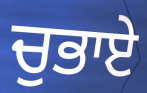
ਚੁਭਾਏ